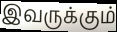
இவருக்கும்